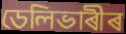
ডেলিভাৰীৰ